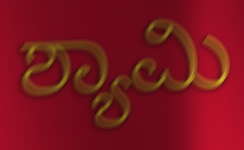
ಶ್ಯಾಮಿ